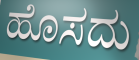
ಹೊಸದು